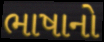
ભાષાનો